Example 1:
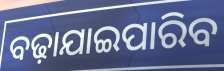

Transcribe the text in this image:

ବଢ଼ାଯାଇପାରିବ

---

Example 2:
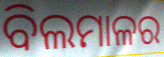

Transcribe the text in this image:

ବିଲମାଳର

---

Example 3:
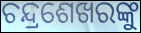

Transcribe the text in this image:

ଚନ୍ଦ୍ରଶେଖରଙ୍କୁ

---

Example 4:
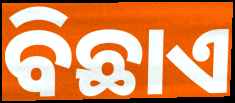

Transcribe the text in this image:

ବିଛାଏ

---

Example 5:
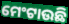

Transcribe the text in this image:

ମେଂଟାଉଛି